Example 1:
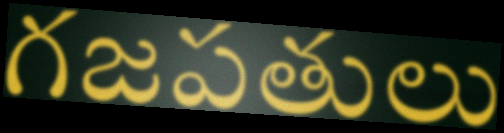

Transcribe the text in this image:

గజపతులు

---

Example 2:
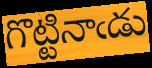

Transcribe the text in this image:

గొట్టినాఁడు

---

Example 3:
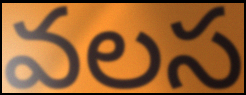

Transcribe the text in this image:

వలస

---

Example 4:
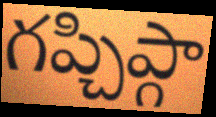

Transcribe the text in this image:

గప్చిప్గా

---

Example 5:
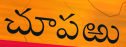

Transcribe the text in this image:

చూపఱు